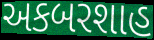
અકબરશાહ